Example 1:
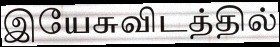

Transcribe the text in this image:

இயேசுவிடத்தில்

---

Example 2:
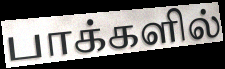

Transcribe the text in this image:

பாக்களில்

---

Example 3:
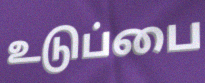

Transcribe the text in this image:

உடுப்பை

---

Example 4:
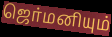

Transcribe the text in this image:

ஜெர்மனியும்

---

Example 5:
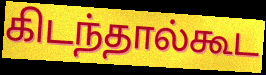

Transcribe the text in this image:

கிடந்தால்கூட